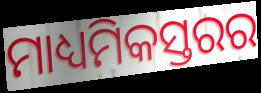
ମାଧ୍ୟମିକସ୍ତରର